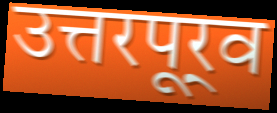
उत्तरपूर्व